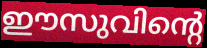
ഈസുവിന്റെ